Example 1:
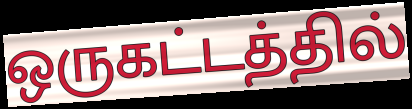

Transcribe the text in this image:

ஒருகட்டத்தில்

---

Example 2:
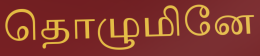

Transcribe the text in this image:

தொழுமினே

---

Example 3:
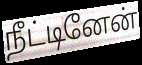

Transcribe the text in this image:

நீட்டினேன்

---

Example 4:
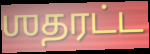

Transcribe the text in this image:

ஶதரட்ட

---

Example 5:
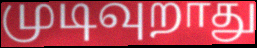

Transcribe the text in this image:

முடிவுறாது